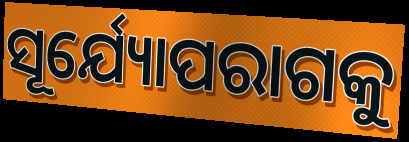
ସୂର୍ଯ୍ୟୋପରାଗକୁ